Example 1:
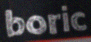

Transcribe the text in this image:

boric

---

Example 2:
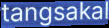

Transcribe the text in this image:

tangsakal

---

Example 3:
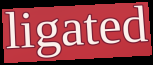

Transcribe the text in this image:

ligated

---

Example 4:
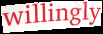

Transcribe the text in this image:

willingly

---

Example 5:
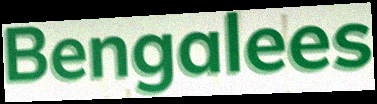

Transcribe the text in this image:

Bengalees